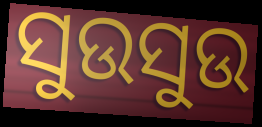
ସୁଉସୁଉ